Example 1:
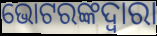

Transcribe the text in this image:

ଭୋଟରଙ୍କଦ୍ଵାରା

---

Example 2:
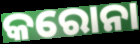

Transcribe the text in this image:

କରୋନା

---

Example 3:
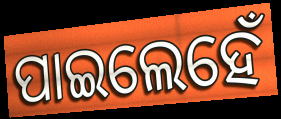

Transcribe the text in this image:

ପାଇଲେହେଁ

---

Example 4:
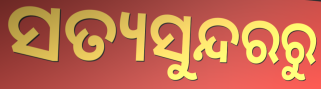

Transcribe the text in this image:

ସତ୍ୟସୁନ୍ଦରରୁ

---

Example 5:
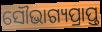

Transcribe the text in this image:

ସୌଭାଗ୍ୟପ୍ରାପ୍ତ